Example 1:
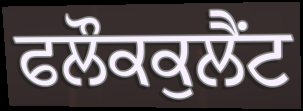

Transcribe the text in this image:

ਫਲੌਕਕੁਲੈਂਟ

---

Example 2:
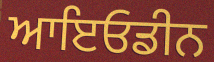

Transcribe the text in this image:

ਆਇਓਡੀਨ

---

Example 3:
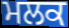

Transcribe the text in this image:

ਮਲਕ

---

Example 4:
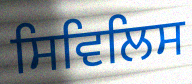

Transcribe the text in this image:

ਸਿਵਿਲਿਸ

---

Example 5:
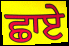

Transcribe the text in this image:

ਛਾਏ